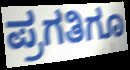
ಪ್ರಗತಿಗೂ